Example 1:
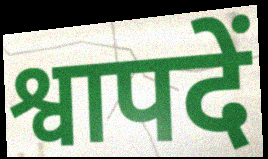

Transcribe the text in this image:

श्वापदें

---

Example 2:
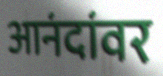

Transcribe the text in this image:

आनंदांवर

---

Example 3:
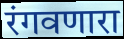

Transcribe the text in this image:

रंगवणारा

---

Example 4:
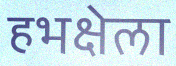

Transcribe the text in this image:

हभक्षेला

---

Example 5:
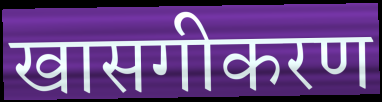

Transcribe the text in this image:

खासगीकरण